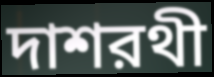
দাশরথী